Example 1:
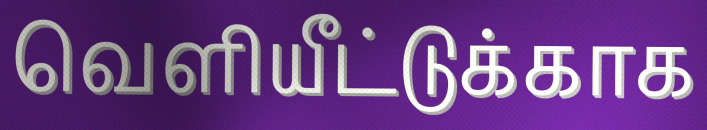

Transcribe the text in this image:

வெளியீட்டுக்காக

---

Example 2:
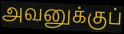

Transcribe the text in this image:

அவனுக்குப்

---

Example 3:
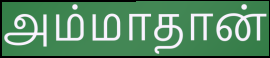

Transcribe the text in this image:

அம்மாதான்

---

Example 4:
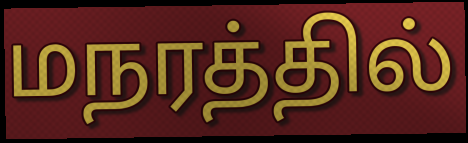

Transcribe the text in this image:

மநரத்தில்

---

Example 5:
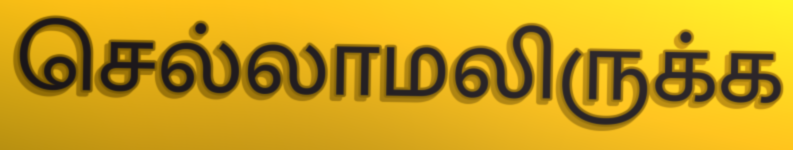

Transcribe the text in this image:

செல்லாமலிருக்க